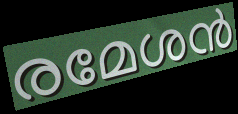
രമേശൻ